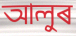
আলুৰ